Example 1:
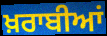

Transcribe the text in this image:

ਖ਼ਰਾਬੀਆਂ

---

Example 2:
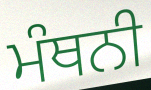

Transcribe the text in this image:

ਮੰਥਨੀ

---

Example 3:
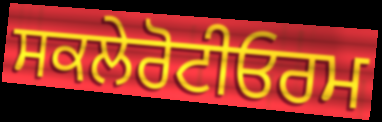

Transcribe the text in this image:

ਸਕਲੇਰੋਟੀਓਰਮ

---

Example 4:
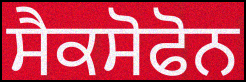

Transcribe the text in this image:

ਸੈਕਸੋਫੋਨ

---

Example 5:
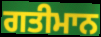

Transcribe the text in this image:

ਗਤੀਮਾਨ